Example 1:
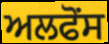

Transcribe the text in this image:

ਅਲਫੋਂਸ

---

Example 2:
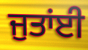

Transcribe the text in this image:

ਜੁਤਾਂਈ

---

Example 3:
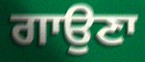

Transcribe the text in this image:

ਗਾਉਣਾ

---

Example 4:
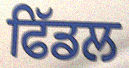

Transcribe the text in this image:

ਫਿੱਡਲ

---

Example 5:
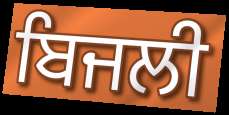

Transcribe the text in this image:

ਬਿਜਲੀ